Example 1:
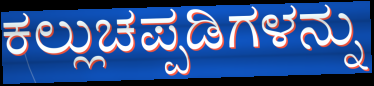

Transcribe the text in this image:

ಕಲ್ಲುಚಪ್ಪಡಿಗಳನ್ನು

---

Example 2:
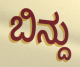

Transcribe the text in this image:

ಬಿನ್ದು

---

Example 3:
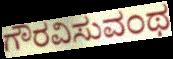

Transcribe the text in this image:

ಗೌರವಿಸುವಂಥ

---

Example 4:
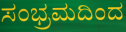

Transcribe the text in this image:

ಸಂಭ್ರಮದಿಂದ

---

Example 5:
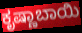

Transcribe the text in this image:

ಕೃಷ್ಣಾಬಾಯಿ